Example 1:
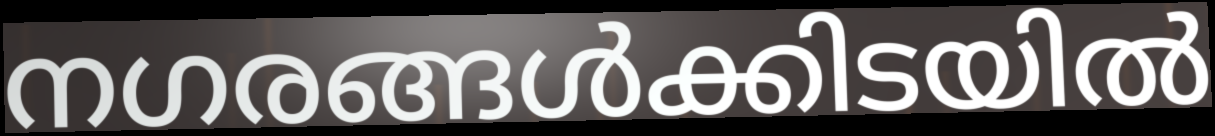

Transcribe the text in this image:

നഗരങ്ങൾക്കിടയിൽ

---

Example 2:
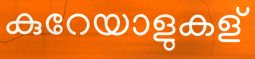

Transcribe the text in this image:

കുറേയാളുകള്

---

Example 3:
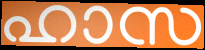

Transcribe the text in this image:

ഹാസ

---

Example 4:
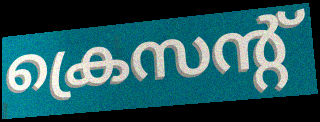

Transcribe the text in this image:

ക്രെസന്റ്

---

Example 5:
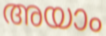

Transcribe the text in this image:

അയാം